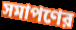
সমাপণের